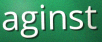
aginst